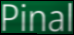
Pinal